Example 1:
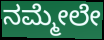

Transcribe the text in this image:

ನಮ್ಮೇಲೇ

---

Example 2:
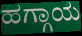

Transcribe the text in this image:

ಹಗ್ಗಾಯ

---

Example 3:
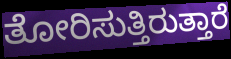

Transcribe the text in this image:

ತೋರಿಸುತ್ತಿರುತ್ತಾರೆ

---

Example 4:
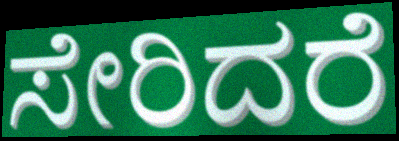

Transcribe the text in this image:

ಸೇರಿದರೆ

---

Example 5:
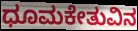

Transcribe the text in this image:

ಧೂಮಕೇತುವಿನ